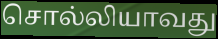
சொல்லியாவது